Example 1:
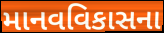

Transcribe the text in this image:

માનવવિકાસના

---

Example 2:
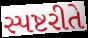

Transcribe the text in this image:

સ્પષ્ટરીતે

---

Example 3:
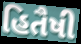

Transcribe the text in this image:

હિતૈષી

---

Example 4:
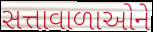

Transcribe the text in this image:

સત્તાવાળાઓને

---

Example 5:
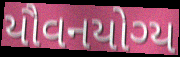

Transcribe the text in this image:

યૌવનયોગ્ય